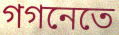
গগনেতে